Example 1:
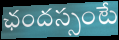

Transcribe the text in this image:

ఛందస్సంటే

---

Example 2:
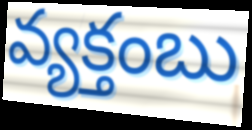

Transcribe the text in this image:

వ్యక్తంబు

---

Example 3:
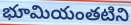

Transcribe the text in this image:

భూమియంతటిని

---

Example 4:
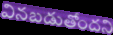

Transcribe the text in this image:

వినబడుతోందని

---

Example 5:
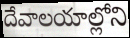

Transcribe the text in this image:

దేవాలయాల్లోని